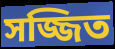
সজ্জিত